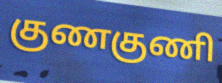
குணகுணி